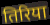
तिरिया